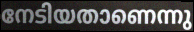
നേടിയതാണെന്നു